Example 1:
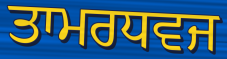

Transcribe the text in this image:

ਤਾਮਰਧਵਜ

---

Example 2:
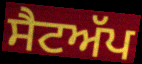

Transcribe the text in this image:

ਸੈਟਅੱਪ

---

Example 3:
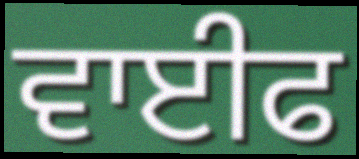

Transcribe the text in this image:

ਵਾਈਫ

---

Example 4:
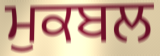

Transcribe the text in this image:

ਮੁਕਬਲ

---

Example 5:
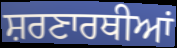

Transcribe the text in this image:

ਸ਼ਰਣਾਰਥੀਆਂ